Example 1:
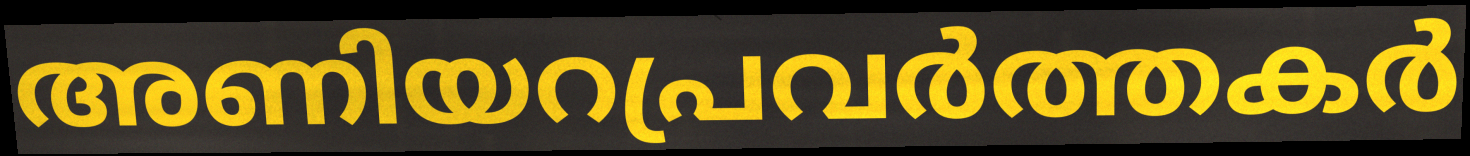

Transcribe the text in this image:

അണിയറപ്രവർത്തകർ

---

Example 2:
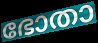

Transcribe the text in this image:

ഭോതാ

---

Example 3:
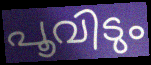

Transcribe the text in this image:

പൂവിടും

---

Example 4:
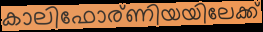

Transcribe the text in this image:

കാലിഫോര്ണിയയിലേക്ക്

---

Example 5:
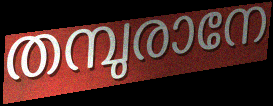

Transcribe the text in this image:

തമ്പുരാനേ